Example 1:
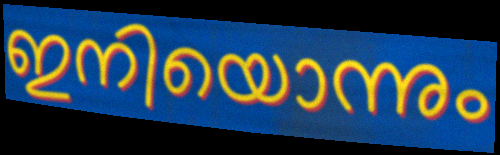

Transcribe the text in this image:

ഇനിയൊന്നും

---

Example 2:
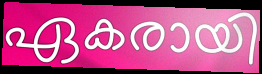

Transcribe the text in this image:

ഏകരായി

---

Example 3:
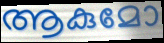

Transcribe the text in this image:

ആകുമോ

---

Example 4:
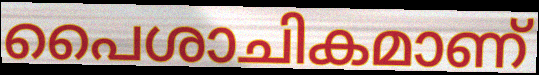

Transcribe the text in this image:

പൈശാചികമാണ്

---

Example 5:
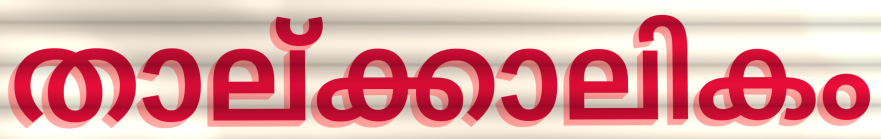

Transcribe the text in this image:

താല്ക്കാലികം